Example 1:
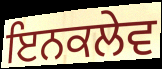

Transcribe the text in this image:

ਇਨਕਲੇਵ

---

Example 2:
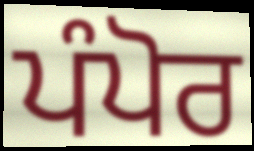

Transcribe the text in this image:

ਪੰਪੋਰ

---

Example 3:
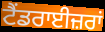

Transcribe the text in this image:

ਟੈਂਡਰਾਈਜ਼ਰਾਂ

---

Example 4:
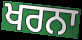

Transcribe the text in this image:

ਖਰਨਾ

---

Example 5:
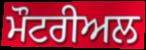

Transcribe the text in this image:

ਮੌਟਰੀਅਲ